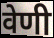
वेणी